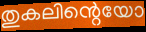
തുകലിന്റെയോ